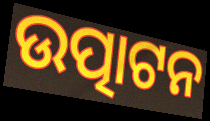
ଉତ୍ପାଟନ